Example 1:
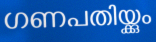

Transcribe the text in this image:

ഗണപതിയ്ക്കും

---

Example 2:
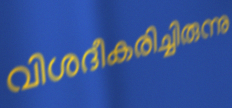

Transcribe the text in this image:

വിശദീകരിച്ചിരുന്നു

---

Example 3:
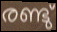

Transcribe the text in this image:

രണ്ടു്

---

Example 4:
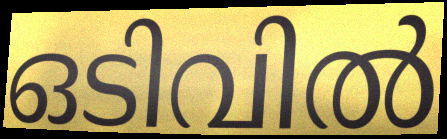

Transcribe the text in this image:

ഒടിവിൽ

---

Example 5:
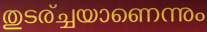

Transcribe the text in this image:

തുടര്ച്ചയാണെന്നും